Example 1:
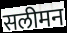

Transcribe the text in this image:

सलीमन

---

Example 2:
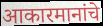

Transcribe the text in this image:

आकारमानांचे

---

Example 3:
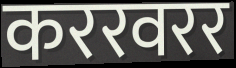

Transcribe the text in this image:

कररवरर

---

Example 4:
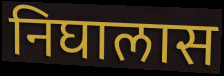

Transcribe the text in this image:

निघालास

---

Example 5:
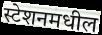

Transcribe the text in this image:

स्टेशनमधील